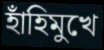
হাঁহিমুখে